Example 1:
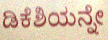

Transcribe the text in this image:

ಡಿಕೆಶಿಯನ್ನೇ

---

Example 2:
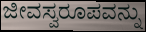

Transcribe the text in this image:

ಜೀವಸ್ವರೂಪವನ್ನು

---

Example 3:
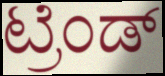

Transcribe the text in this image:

ಟ್ರೆಂಡ್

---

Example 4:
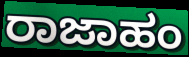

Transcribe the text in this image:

ರಾಜಾಹಂ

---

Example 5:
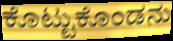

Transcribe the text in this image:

ಕೊಟ್ಟುಕೊಂಡನು